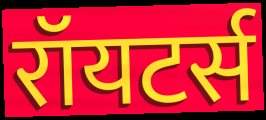
रॉयटर्स